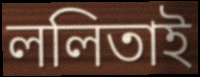
ললিতাই